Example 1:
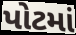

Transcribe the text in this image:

પોટમાં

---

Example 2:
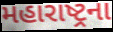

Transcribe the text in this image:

મહારાષ્ટ્રના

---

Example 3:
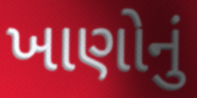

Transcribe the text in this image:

ખાણોનું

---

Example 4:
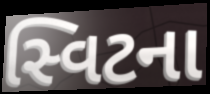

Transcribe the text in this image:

સ્વિટના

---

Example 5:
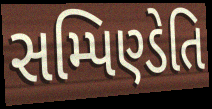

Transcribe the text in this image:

સમ્પિણ્ડેતિ